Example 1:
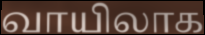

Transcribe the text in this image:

வாயிலாக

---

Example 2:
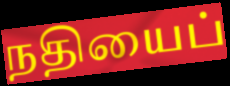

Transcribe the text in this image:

நதியைப்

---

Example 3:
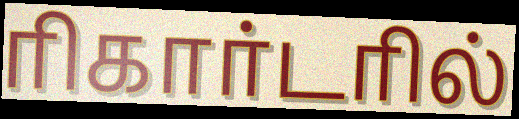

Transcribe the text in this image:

ரிகார்டரில்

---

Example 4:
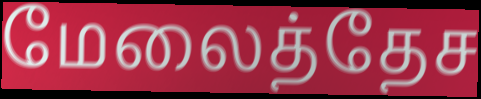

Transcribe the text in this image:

மேலைத்தேச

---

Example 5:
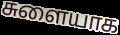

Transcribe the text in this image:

சுளையாக